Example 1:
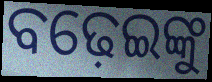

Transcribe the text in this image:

ବଢ଼େଇଙ୍କୁ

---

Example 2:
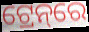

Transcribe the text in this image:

ଟ୍ରେନ୍‌ରେ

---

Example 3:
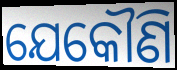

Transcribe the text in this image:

ଯେକୌଣି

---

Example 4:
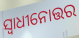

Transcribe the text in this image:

ସ୍ୱାଧୀନୋତ୍ତର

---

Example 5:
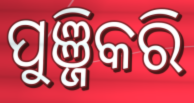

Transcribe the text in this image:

ପୁଞ୍ଜିକରି